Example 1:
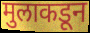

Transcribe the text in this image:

मुलाकडून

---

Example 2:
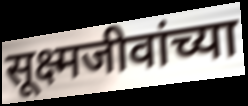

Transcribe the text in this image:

सूक्ष्मजीवांच्या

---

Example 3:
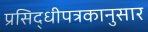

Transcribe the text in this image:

प्रसिद्धीपत्रकानुसार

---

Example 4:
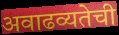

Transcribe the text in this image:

अवाढव्यतेची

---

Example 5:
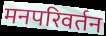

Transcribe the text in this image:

मनपरिवर्तन